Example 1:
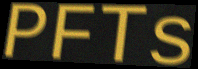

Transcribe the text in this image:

PFTs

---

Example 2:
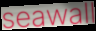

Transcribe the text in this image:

seawall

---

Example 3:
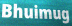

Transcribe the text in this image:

Bhuimug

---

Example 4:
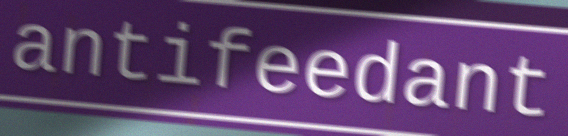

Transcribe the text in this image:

antifeedant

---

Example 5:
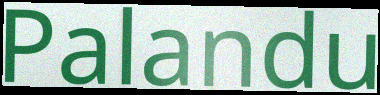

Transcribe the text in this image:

Palandu